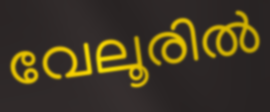
വേലൂരിൽ